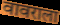
वावराला